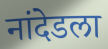
नांदेडला